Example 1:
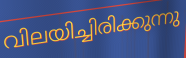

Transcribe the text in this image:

വിലയിച്ചിരിക്കുന്നു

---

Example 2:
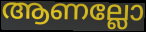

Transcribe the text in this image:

ആണല്ലോ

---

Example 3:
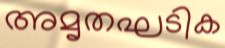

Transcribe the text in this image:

അമൃതഘടിക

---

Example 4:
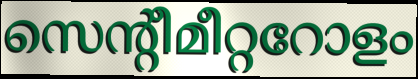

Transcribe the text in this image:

സെന്റീമീറ്ററോളം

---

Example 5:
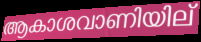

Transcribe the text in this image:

ആകാശവാണിയില്